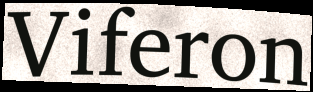
Viferon